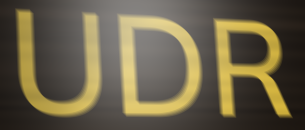
UDR